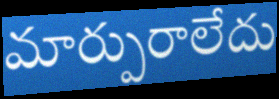
మార్పురాలేదు